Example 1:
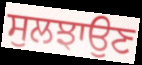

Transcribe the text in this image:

ਸੁਲਝਾਉਣ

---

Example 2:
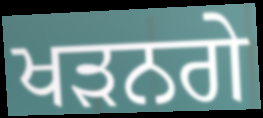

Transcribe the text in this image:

ਖੜਨਗੇ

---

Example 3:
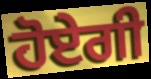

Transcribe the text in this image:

ਹੋਏਗੀ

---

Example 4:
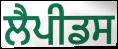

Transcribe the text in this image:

ਲੈਪੀਡਸ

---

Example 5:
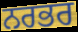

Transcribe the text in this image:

ਨਰਭਰ